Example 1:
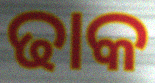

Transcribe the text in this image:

ଢାକ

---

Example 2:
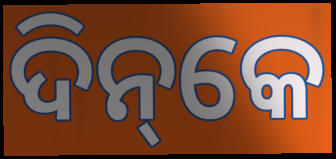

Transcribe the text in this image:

ଦିନ୍‌କେ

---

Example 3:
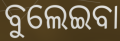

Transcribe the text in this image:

ବୁଲେଇବା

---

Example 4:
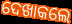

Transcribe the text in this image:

ଦେଖାକଲେ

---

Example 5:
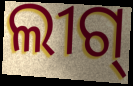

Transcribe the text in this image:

ଲୀଗ୍